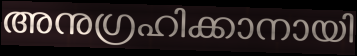
അനുഗ്രഹിക്കാനായി